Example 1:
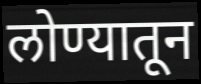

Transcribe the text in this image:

लोण्यातून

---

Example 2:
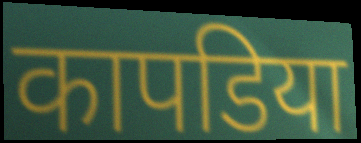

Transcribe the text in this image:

कापडिया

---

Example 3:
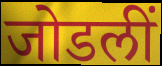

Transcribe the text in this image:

जोडलीं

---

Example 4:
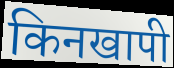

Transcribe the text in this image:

किनखापी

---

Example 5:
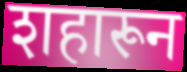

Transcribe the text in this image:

शहारून